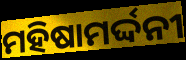
ମହିଷାମର୍ଦ୍ଦନୀ